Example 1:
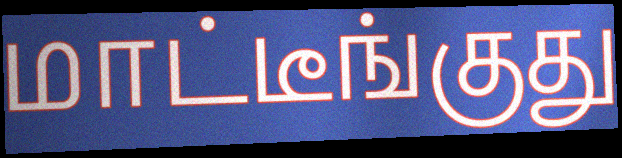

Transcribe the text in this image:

மாட்டீங்குது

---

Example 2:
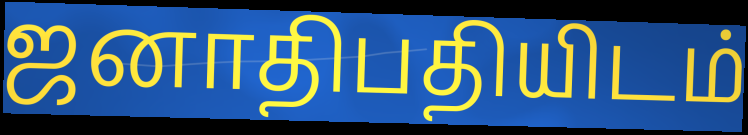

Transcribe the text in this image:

ஜனாதிபதியிடம்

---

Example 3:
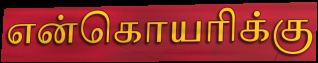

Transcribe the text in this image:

என்கொயரிக்கு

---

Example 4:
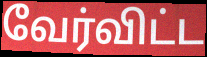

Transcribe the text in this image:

வேர்விட்ட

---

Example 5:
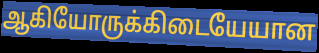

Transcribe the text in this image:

ஆகியோருக்கிடையேயான